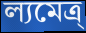
ল্যমেত্র্